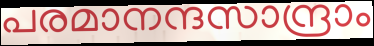
പരമാനന്ദസാന്ദ്രാം